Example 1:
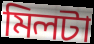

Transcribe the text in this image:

মিলটা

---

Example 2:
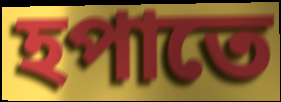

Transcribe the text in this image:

হপাতে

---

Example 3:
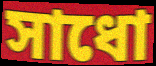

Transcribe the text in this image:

সাধো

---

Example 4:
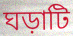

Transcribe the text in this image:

ঘড়াটি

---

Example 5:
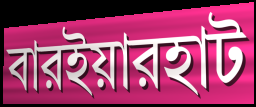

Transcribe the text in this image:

বারইয়ারহাট